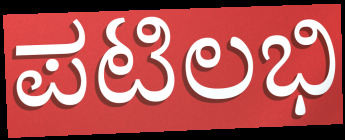
ಪಟಿಲಭಿ